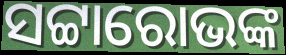
ସଟ୍ଟାରୋଭଙ୍କ